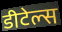
डीटेल्स